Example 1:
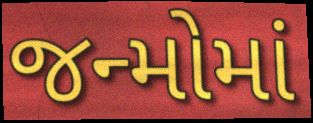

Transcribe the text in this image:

જન્મોમાં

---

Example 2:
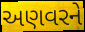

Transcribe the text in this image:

અણવરને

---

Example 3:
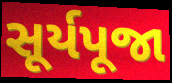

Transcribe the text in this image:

સૂર્યપૂજા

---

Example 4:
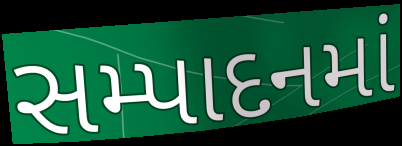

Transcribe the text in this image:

સમ્પાદનમાં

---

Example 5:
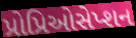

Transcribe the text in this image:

પ્રોપ્રિઓસેપ્શન